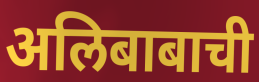
अलिबाबाची